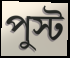
পুস্ট